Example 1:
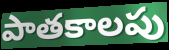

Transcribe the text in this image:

పాతకాలపు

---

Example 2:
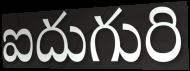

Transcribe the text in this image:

ఐదుగురి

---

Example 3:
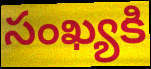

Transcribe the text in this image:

సంఖ్యకి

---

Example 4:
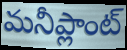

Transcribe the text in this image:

మనీప్లాంట్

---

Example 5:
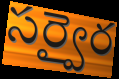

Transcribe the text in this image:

సర్వైర